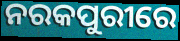
ନରକପୁରୀରେ